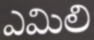
ఎమిలి